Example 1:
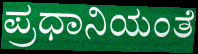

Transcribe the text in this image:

ಪ್ರಧಾನಿಯಂತೆ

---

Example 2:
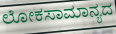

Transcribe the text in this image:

ಲೋಕಸಾಮಾನ್ಯದ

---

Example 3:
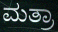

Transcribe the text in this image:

ಮತ್ರಾ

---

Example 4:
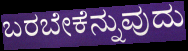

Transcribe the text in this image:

ಬರಬೇಕೆನ್ನುವುದು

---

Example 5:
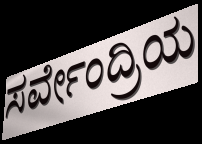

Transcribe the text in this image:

ಸರ್ವೇಂದ್ರಿಯ